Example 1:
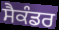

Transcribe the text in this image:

ਸੈਕੰਡਰ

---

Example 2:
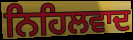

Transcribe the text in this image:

ਨਿਹਿਲਵਾਦ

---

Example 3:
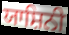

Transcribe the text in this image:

ਯਾਸ਼ਿਨੀ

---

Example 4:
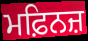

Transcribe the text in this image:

ਮਫ਼ਿਨਜ਼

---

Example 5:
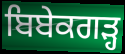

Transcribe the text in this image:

ਬਿਬੇਕਗੜ੍ਹ